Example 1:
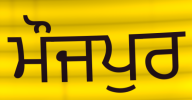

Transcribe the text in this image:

ਮੌਜਪੁਰ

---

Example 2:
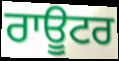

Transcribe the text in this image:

ਰਾਊਟਰ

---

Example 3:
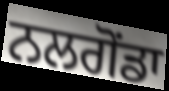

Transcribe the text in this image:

ਨਲਗੋਂਡਾ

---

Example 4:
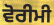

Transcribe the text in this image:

ਵੋਰੀਮੀ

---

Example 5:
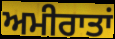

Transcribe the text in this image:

ਅਮੀਰਾਤਾਂ